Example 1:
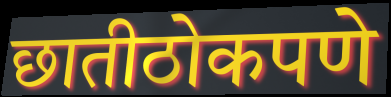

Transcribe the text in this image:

छातीठोकपणे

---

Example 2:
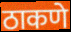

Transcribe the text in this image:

ठाकणे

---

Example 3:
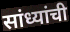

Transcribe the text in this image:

सांध्यांची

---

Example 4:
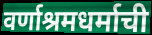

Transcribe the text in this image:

वर्णाश्रमधर्माची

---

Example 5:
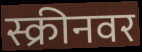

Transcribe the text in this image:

स्क्रीनवर